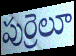
పుర్రెలూ